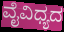
ವೈವಿಧ್ಯದ